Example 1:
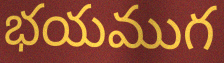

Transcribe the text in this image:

భయముగ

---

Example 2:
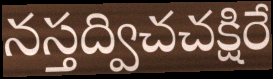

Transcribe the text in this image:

నస్తద్విచచక్షిరే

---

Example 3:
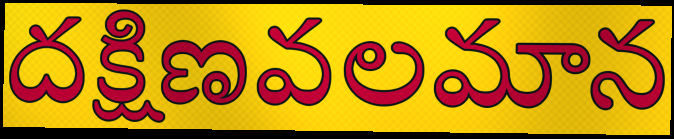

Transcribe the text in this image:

దక్షిణవలమాన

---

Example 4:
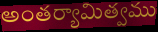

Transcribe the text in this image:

అంతర్యామిత్వము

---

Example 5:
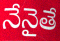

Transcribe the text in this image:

నేనైతే